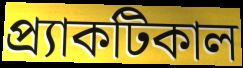
প্র্যাকটিকাল